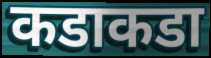
कडाकडा